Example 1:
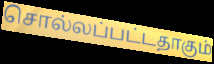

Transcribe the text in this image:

சொல்லப்பட்டதாகும்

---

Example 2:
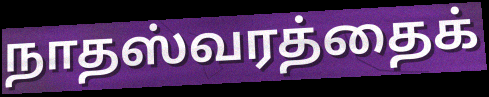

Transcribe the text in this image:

நாதஸ்வரத்தைக்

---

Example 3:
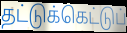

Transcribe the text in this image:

தட்டுக்கெட்டுப்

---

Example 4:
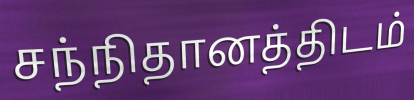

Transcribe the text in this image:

சந்நிதானத்திடம்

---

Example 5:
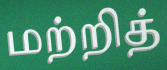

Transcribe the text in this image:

மற்றித்